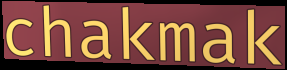
chakmak